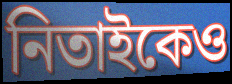
নিতাইকেও